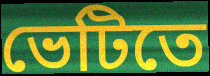
ভেটিতে